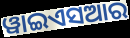
ୱାଇଏସଆର